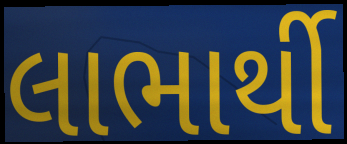
લાભાર્થી